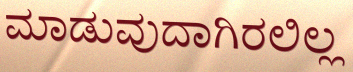
ಮಾಡುವುದಾಗಿರಲಿಲ್ಲ